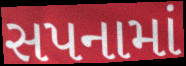
સપનામાં